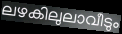
ലഴകിലുലാവീടും